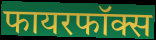
फायरफॉक्स